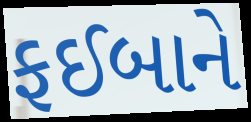
ફઈબાને